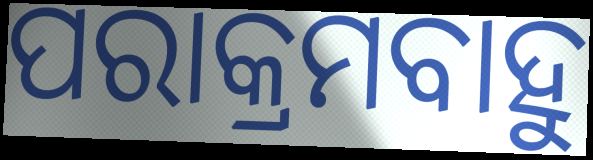
ପରାକ୍ରମବାହୁ